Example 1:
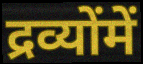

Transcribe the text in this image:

द्रव्योंमें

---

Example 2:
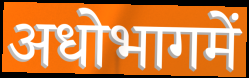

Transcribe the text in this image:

अधोभागमें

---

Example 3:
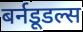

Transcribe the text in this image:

बर्नडूडल्स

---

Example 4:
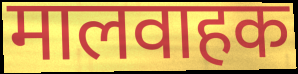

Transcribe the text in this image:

मालवाहक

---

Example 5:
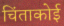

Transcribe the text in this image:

चिंताकोई